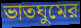
ভাতঘুমের